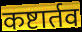
कष्टार्तव